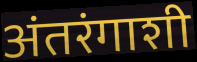
अंतरंगाशी